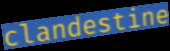
clandestine